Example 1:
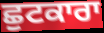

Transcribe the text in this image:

ਛੁਟਕਾਰਾ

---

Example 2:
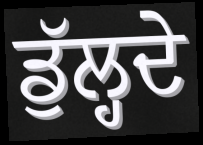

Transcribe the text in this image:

ਡੁੱਲ੍ਹਦੇ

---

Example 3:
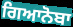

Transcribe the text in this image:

ਗਿਆਨੋਬਾ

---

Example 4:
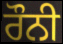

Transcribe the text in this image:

ਰੌਨੀ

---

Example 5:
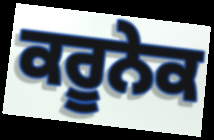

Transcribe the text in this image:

ਕਰੂਨੇਕ